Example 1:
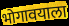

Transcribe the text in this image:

भोगावयाला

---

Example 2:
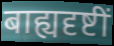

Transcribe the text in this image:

बाह्यदृष्टीं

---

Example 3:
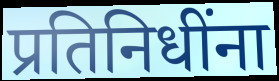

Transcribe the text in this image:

प्रतिनिधींना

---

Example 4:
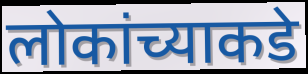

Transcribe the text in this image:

लोकांच्याकडे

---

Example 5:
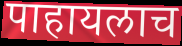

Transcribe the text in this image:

पाहायलाच